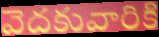
వెదకువారికి